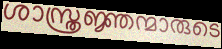
ശാസ്ത്രജ്ഞന്മാരുടെ